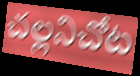
చల్లనిచోట